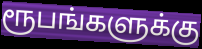
ரூபங்களுக்கு